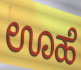
ಊಹೆ